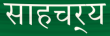
साहचर्य